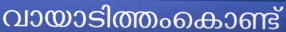
വായാടിത്തംകൊണ്ട്